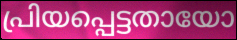
പ്രിയപ്പെട്ടതായോ